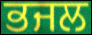
ਭਜਲ